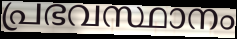
പ്രഭവസ്ഥാനം